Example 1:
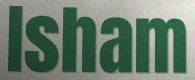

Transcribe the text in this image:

Isham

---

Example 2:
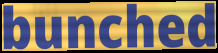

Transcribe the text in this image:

bunched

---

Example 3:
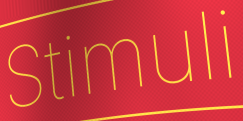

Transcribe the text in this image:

Stimuli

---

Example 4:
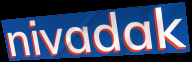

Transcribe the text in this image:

nivadak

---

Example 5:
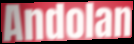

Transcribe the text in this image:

Andolan